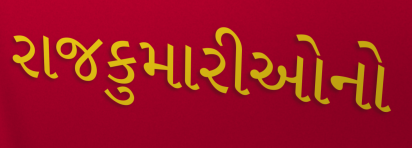
રાજકુમારીઓનો